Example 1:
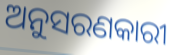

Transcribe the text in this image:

ଅନୁସରଣକାରୀ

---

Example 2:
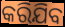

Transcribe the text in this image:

କରିଯିବ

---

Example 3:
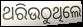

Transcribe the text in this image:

ଥରିଉଠୁଥିଲେ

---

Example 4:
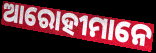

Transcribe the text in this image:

ଆରୋହୀମାନେ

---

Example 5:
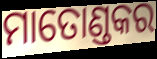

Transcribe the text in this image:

ମାତୋଣ୍ଡକର